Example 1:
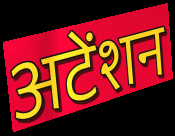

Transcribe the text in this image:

अटेंशन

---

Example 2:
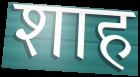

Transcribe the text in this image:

शाह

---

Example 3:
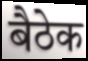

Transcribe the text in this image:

बैठेक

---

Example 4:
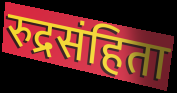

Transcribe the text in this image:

रुद्रसंहिता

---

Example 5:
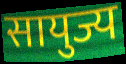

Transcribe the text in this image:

सायुज्य